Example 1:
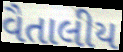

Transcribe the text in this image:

વૈતાલીય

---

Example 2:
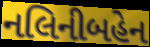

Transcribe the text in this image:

નલિનીબહેન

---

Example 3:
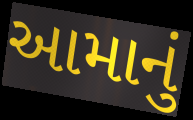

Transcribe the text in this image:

આમાનું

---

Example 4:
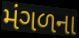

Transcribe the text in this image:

મંગળના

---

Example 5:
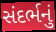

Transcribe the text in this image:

સંદર્ભનું